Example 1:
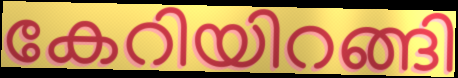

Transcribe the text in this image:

കേറിയിറങ്ങി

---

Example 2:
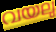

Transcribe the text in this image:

വയലു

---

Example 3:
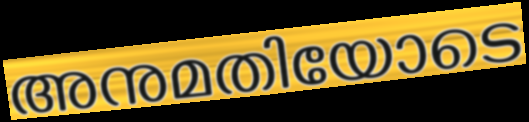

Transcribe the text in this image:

അനുമതിയോടെ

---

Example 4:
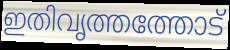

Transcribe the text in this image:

ഇതിവൃത്തത്തോട്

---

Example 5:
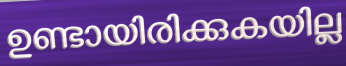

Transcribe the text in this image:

ഉണ്ടായിരിക്കുകയില്ല